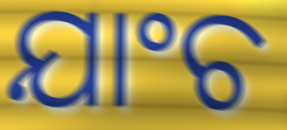
ଯାଂଚ